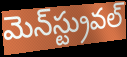
మెన్‌స్ట్రువల్